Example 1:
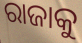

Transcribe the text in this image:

ରାଜାକୁ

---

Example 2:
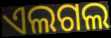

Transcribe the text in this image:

ଏଲଗଲ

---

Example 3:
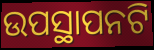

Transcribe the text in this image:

ଉପସ୍ଥାପନଟି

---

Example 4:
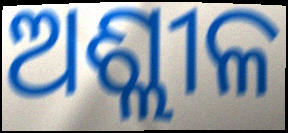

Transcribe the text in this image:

ଅଶ୍ଲୀଳ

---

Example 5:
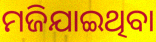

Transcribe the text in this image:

ମଜିଯାଇଥିବା